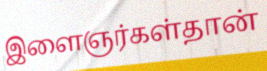
இளைஞர்கள்தான்